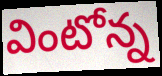
వింటోన్న